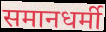
समानधर्मी